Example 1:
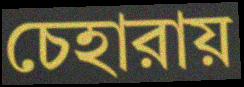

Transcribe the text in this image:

চেহারায়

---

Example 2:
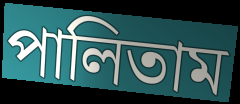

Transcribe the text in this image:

পালিতাম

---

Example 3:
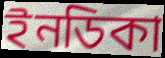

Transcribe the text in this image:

ইনডিকা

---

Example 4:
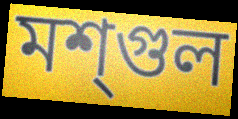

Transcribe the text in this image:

মশ্গুল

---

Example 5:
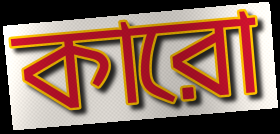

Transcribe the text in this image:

কারো